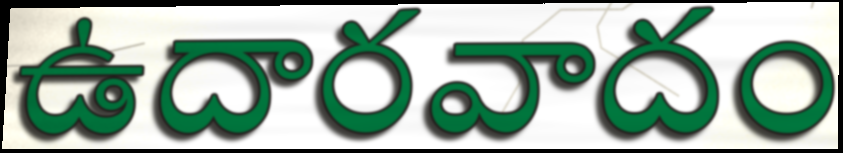
ఉదారవాదం